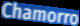
Chamorro